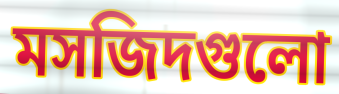
মসজিদগুলো